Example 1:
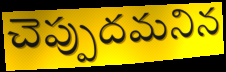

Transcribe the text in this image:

చెప్పుదమనిన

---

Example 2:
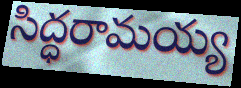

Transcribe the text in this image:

సిద్ధరామయ్య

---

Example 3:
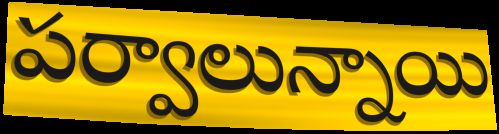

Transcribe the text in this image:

పర్వాలున్నాయి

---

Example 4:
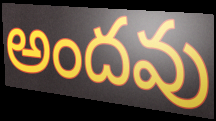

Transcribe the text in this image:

అందవు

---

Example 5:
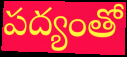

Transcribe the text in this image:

పద్యంతో